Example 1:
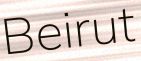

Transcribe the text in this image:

Beirut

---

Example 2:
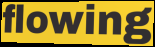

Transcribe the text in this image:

flowing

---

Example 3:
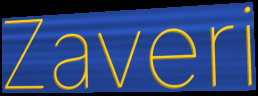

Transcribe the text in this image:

Zaveri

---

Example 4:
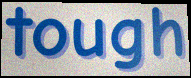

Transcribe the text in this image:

tough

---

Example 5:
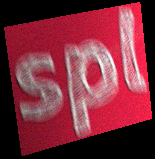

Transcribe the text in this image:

spl